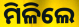
ମିଳିଲେ